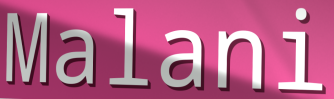
Malani